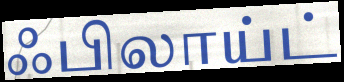
ஃபிலாய்ட்